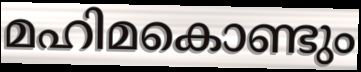
മഹിമകൊണ്ടും